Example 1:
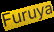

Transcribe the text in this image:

Furuya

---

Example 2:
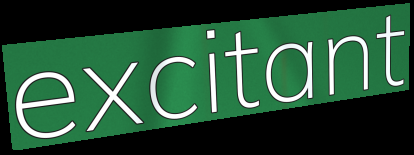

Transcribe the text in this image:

excitant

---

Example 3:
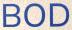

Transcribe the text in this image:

BOD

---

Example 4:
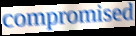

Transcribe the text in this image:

compromised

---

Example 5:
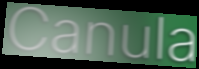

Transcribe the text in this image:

Canula